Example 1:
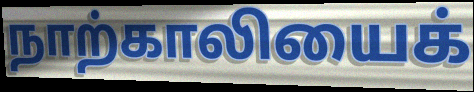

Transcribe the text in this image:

நாற்காலியைக்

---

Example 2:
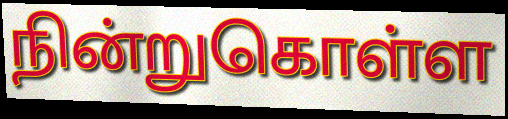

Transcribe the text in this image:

நின்றுகொள்ள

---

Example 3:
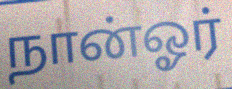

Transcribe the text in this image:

நான்ஓர்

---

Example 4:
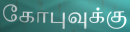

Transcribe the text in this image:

கோபுவுக்கு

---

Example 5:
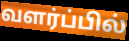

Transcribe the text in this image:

வளர்ப்பில்